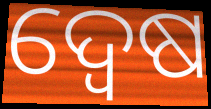
ଦ୍ବେଷ